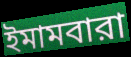
ইমামবারা